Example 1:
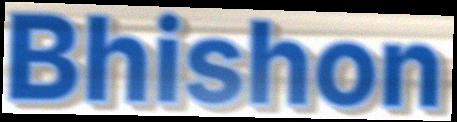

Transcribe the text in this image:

Bhishon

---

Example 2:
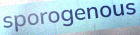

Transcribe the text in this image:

sporogenous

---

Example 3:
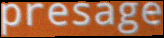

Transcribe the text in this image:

presage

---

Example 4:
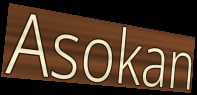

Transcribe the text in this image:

Asokan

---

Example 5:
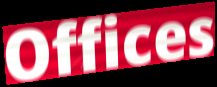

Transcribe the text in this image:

Offices